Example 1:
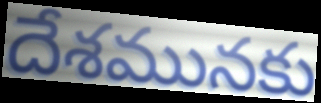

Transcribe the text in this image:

దేశమునకు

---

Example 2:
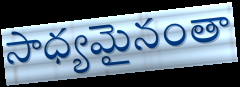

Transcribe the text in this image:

సాధ్యమైనంతా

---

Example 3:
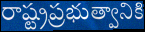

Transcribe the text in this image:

రాష్ట్రప్రభుత్వానికి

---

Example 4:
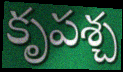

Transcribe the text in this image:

కృపశ్చ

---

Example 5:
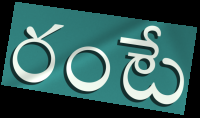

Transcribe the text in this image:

రంటే